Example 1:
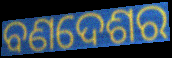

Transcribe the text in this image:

ବଣଦେଶର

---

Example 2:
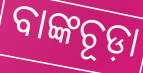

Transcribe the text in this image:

ବାଙ୍କଚୂଡ଼ା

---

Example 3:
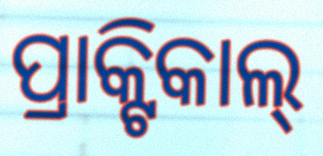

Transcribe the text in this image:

ପ୍ରାକ୍ଟିକାଲ୍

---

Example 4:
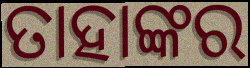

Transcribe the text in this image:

ତାହାଙ୍କର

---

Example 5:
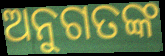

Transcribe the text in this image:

ଅନୁଗତଙ୍କ